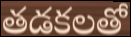
తడకలతో